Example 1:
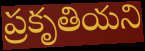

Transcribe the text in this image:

ప్రకృతియని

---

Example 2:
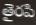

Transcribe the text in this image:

తైరపి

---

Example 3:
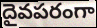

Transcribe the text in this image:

దైవపరంగా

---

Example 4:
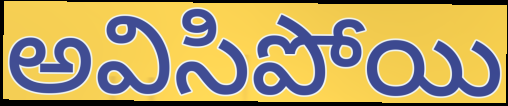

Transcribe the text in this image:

అవిసిపోయి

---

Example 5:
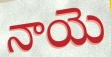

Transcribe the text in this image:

నాయె